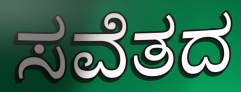
ಸವೆತದ